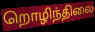
றொழிந்திலை